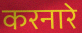
करनारे